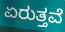
ಏರುತ್ತವೆ